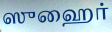
ஸுஹைர்